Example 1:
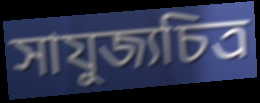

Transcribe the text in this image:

সাযুজ্যচিত্র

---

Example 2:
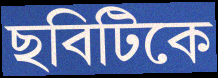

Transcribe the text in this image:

ছবিটিকে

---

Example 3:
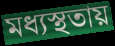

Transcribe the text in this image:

মধ্যস্থতায়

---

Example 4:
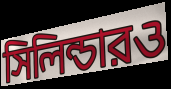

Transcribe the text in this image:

সিলিন্ডারও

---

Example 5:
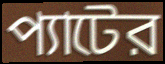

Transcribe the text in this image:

প্যাটের